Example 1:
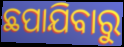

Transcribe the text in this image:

ଛପାଯିବାରୁ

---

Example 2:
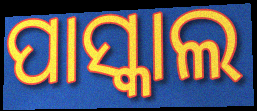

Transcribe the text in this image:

ପାସ୍କାଲ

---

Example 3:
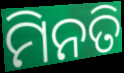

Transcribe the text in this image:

ମିନତି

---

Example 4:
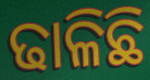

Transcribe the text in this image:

ଢାଳିଛି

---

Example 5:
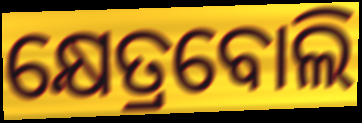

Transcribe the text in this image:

କ୍ଷେତ୍ରବୋଲି